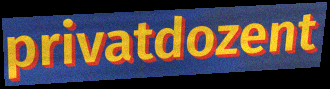
privatdozent